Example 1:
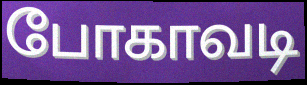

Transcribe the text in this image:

போகாவடி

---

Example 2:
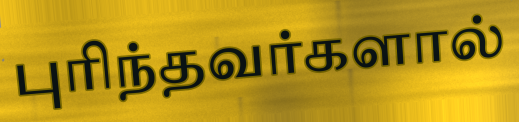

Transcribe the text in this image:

புரிந்தவர்களால்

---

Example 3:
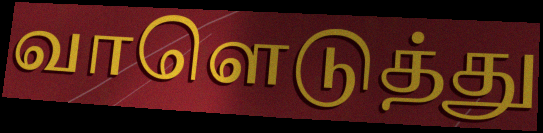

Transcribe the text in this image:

வாளெடுத்து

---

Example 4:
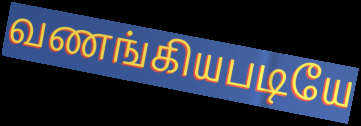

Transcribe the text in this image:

வணங்கியபடியே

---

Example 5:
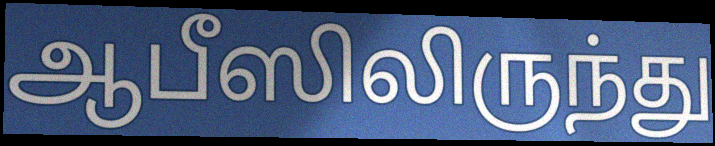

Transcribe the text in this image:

ஆபீஸிலிருந்து